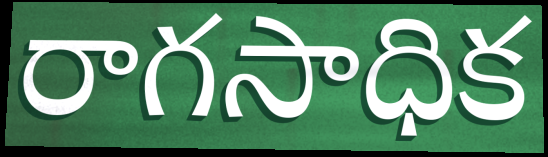
రాగసాధిక